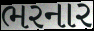
ભરનાર